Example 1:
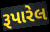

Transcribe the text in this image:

રૂપારેલ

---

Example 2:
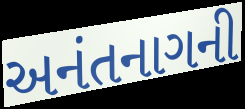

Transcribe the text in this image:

અનંતનાગની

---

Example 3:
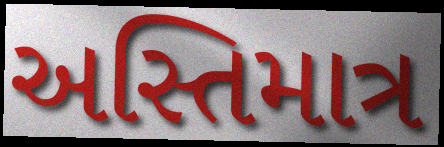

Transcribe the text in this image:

અસ્તિમાત્ર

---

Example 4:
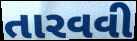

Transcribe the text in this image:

તારવવી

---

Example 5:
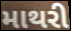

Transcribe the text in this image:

માથરી